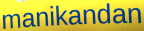
manikandan